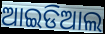
ଆଇଡିଆଲ